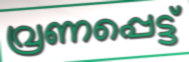
വ്രണപ്പെട്ട്